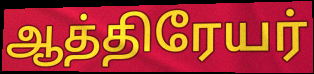
ஆத்திரேயர்